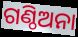
ଗଣ୍ଠିଅନା